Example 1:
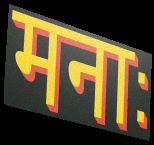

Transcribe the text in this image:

मनाः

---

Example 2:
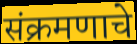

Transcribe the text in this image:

संक्रमणाचे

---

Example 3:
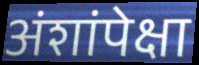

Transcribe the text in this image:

अंशांपेक्षा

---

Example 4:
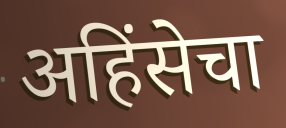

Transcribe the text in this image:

अहिंसेचा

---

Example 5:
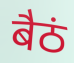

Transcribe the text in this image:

बैठं